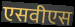
एसवीएस